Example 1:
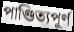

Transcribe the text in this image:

পাণ্ডিত্যপূৰ্ণ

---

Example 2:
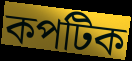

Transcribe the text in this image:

কপটিক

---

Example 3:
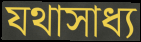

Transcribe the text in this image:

যথাসাধ্য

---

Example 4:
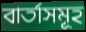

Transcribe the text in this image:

বাৰ্তাসমূহ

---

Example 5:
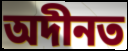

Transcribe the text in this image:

অদীনত